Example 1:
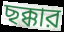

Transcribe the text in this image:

ছক্কার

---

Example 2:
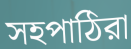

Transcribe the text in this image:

সহপাঠিরা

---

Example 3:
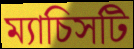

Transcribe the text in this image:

ম্যাচিসটি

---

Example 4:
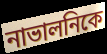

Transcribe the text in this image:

নাভালনিকে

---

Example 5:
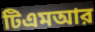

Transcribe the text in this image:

টিএমআর